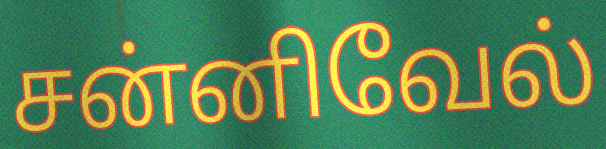
சன்னிவேல்